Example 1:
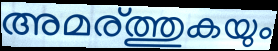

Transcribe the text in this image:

അമര്ത്തുകയും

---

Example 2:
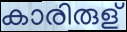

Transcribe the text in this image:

കാരിരുള്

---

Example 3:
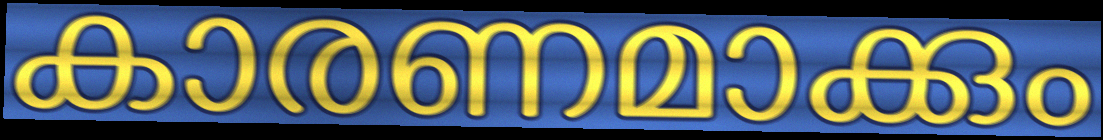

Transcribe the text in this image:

കാരണമാക്കും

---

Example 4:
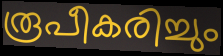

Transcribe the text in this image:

രൂപീകരിച്ചും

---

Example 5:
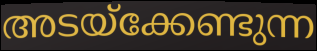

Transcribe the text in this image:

അടയ്ക്കേണ്ടുന്ന